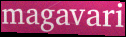
magavari